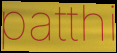
patthi